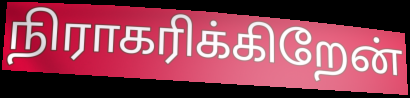
நிராகரிக்கிறேன்